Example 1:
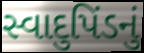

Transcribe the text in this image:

સ્વાદુપિંડનું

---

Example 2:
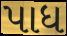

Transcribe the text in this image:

પાધ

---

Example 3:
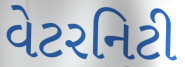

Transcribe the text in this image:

વેટરનિટી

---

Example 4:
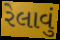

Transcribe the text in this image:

રેલાવું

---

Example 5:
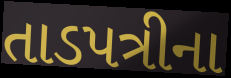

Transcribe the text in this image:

તાડપત્રીના